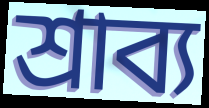
শ্রাব্য